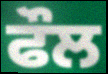
ਫੌਲ